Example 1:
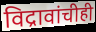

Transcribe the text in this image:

विद्रावांचीही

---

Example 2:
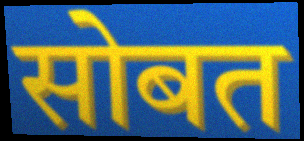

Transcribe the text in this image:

सोबत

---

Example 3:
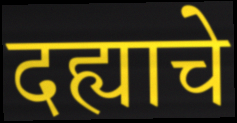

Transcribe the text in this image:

दह्याचे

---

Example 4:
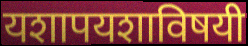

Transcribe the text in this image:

यशापयशाविषयी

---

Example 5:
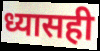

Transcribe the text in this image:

ध्यासही